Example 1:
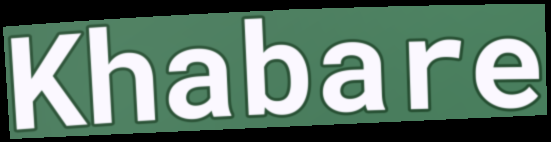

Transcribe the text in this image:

Khabare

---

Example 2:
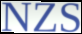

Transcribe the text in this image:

NZS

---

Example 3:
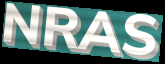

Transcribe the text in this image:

NRAS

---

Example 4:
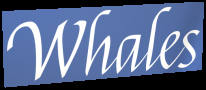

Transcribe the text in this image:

Whales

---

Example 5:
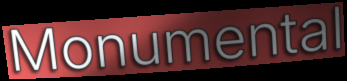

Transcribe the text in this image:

Monumental